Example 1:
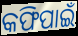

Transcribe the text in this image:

କଫିପାଇଁ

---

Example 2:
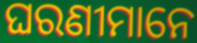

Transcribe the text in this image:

ଘରଣୀମାନେ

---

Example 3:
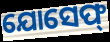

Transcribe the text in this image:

ଯୋସେଫ୍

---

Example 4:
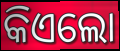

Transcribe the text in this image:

କିଏଲୋ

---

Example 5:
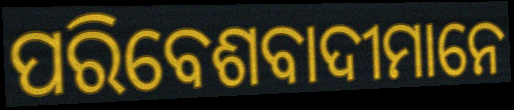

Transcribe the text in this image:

ପରିବେଶବାଦୀମାନେ